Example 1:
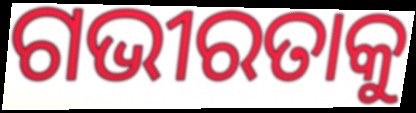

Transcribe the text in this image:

ଗଭୀରତାକୁ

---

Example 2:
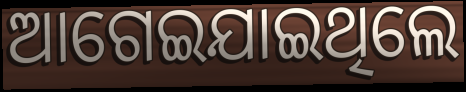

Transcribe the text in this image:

ଆଗେଇଯାଇଥିଲେ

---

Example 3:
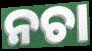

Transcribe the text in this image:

ନଚା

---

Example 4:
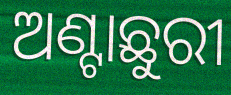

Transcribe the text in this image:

ଅଣ୍ଟାଛୁରୀ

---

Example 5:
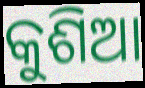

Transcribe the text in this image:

କୁଶିଆ